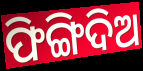
ଫିଙ୍ଗିଦିଅ